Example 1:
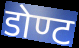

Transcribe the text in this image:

डोण्ट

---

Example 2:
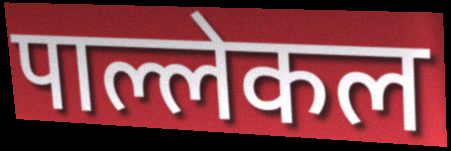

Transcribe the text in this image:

पाल्लेकल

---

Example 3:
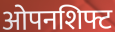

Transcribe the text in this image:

ओपनशिफ्ट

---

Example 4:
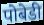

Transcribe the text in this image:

पोबेडी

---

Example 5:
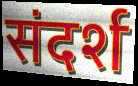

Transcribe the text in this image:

संदर्श